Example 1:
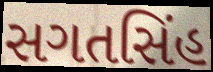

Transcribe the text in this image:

સગતસિંહ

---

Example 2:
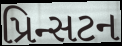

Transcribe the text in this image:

પ્રિન્સટન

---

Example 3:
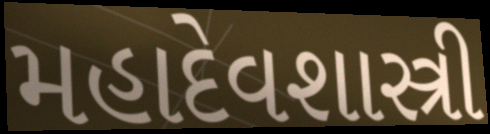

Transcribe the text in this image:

મહાદેવશાસ્ત્રી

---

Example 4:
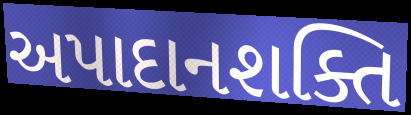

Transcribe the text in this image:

અપાદાનશક્તિ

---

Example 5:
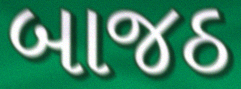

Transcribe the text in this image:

બાજઠ